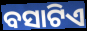
ବସାଟିଏ